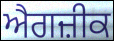
ਐਗਜ਼ੀਕ